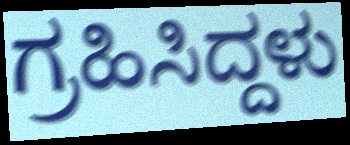
ಗ್ರಹಿಸಿದ್ದಳು